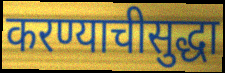
करण्याचीसुद्धा